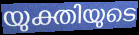
യുക്തിയുടെ